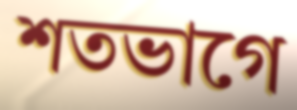
শতভাগে